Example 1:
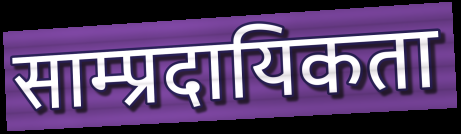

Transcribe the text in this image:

साम्प्रदायिकता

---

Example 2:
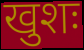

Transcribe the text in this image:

खुशः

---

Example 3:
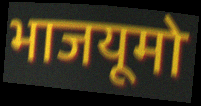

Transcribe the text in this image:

भाजयूमो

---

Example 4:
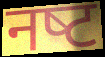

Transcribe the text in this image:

नष्‍ट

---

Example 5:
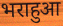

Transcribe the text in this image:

भराहुआ